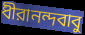
ধীরানন্দবাবু